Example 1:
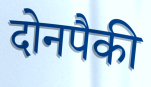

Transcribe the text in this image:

दोनपैकी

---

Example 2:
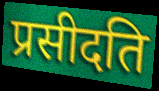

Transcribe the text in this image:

प्रसीदति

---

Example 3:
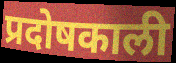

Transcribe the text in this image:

प्रदोषकाली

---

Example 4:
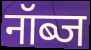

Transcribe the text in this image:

नॉब्ज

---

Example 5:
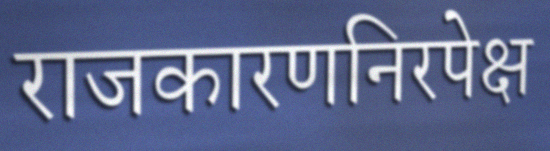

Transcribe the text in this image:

राजकारणनिरपेक्ष